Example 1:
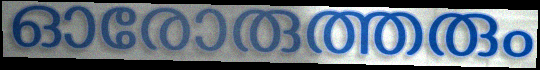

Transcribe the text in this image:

ഓരോരുത്തരും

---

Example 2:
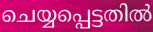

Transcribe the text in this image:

ചെയ്യപ്പെട്ടതിൽ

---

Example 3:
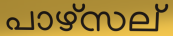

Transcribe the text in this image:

പാഴ്സല്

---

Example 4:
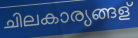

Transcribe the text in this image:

ചിലകാര്യങ്ങള്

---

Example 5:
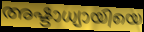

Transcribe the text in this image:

അഷ്ടാധ്യായിയെ